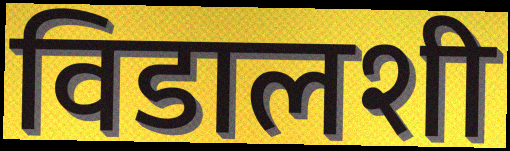
विडालशी